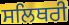
ਸਲਿਥਰੀ